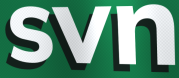
svn